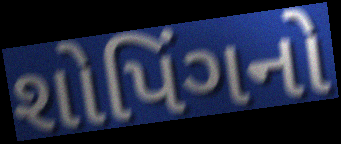
શોપિંગનો